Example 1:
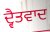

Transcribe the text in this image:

ਦ੍ਵੈਤਵਾਦ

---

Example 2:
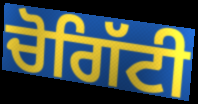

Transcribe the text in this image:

ਚੋਗਿੱਟੀ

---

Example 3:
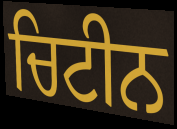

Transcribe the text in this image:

ਚਿਟੀਨ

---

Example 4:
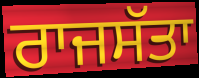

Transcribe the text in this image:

ਰਾਜਸੱਤਾ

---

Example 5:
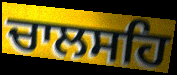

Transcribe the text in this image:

ਚਾਲਸਹਿ